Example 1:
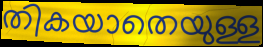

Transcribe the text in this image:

തികയാതെയുള്ള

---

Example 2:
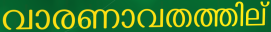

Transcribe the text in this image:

വാരണാവതത്തില്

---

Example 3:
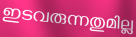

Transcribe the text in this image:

ഇടവരുന്നതുമില്ല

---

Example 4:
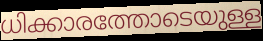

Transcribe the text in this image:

ധിക്കാരത്തോടെയുള്ള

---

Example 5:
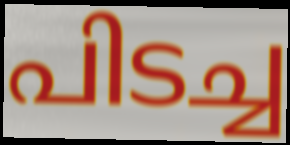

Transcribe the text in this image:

പിടച്ച